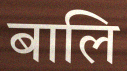
बालि